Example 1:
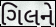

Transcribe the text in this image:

ગિલને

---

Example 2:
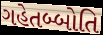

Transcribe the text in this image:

ગહેતબ્બોતિ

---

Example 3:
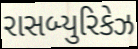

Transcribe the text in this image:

રાસબ્યુરિકેઝ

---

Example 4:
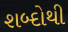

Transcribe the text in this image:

શબ્દોથી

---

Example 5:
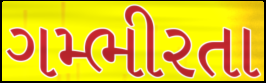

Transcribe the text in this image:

ગમ્ભીરતા